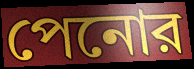
পেনোর